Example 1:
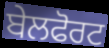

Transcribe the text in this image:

ਬੇਲਫੋਰਟ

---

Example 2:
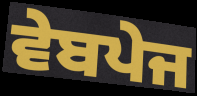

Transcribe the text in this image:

ਵੇਬਪੇਜ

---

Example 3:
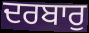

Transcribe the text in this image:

ਦਰਬਾਰੁ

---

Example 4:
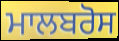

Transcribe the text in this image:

ਮਾਲਬਰੋਸ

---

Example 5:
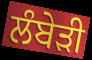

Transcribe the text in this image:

ਲੰਬੇੜੀ